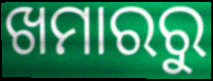
ଖମାରରୁ